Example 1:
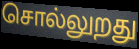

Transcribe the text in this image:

சொல்லுறது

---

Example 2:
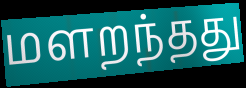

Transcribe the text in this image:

மளறந்தது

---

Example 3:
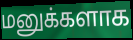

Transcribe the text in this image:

மனுக்களாக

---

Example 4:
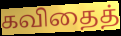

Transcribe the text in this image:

கவிதைத்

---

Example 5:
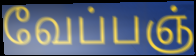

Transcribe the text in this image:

வேப்பஞ்